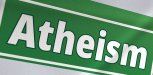
Atheism